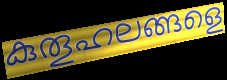
കുതൂഹലങ്ങളെ